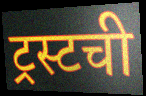
ट्रस्टची